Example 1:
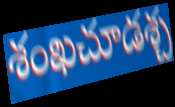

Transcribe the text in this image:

శంఖచూడశ్చ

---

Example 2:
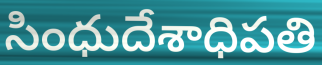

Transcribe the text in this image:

సింధుదేశాధిపతి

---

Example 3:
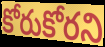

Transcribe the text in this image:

కోరుకోరని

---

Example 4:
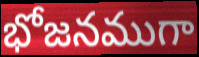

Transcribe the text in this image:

భోజనముగా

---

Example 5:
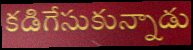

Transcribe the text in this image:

కడిగేసుకున్నాడు